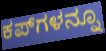
ಕಪ್‌ಗಳನ್ನೂ